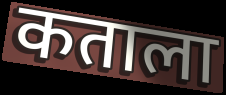
कताला